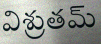
విశ్రుతమ్